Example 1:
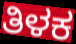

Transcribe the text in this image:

ತಿಳಕ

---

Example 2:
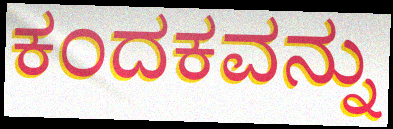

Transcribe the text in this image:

ಕಂದಕವನ್ನು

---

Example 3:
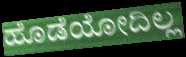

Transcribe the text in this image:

ಹೊಡೆಯೋದಿಲ್ಲ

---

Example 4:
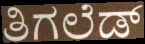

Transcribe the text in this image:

ತಿಗಲೆಡ್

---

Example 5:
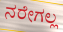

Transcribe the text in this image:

ನರೇಗಲ್ಲ